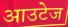
आउटेज